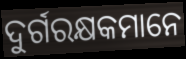
ଦୁର୍ଗରକ୍ଷକମାନେ